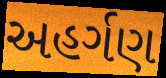
અહર્ગણ